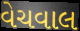
વેચવાલ